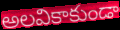
అలవికాకుండా